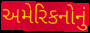
અમેરિકનોનું